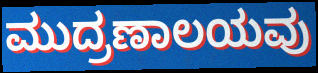
ಮುದ್ರಣಾಲಯವು